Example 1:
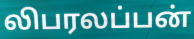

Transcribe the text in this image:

லிபரலப்பன்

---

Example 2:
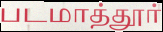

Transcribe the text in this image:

படமாத்தூர்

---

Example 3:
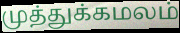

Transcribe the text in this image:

முத்துக்கமலம்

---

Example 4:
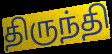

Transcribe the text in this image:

திருந்தி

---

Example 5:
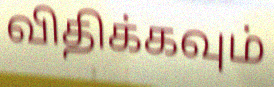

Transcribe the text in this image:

விதிக்கவும்